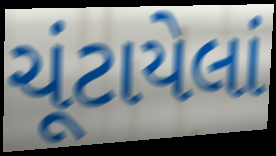
ચૂંટાયેલાં